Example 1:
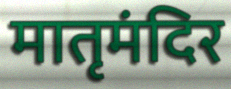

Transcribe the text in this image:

मातृमंदिर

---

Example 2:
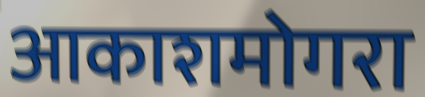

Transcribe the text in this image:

आकाशमोगरा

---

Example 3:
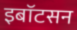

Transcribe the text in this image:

इबॉटसन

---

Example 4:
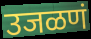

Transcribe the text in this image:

उजळणं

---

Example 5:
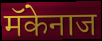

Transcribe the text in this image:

मॅकेनाज